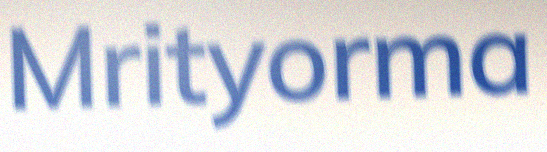
Mrityorma